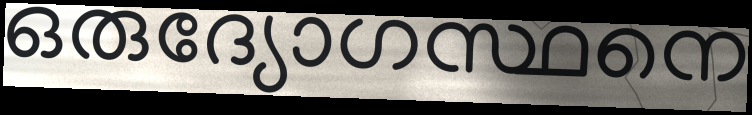
ഒരുദ്യോഗസ്ഥനെ